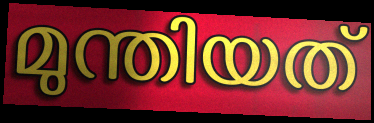
മുന്തിയത്